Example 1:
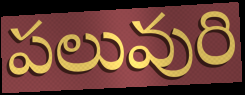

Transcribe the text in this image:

పలువురి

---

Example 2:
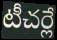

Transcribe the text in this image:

టీచర్లే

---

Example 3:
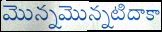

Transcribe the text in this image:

మొన్నమొన్నటిదాకా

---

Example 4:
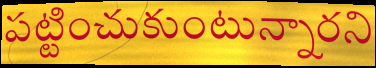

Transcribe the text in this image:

పట్టించుకుంటున్నారని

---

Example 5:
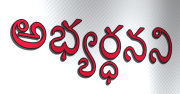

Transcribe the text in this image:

అభ్యర్ధనని